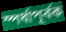
স্পর্ধাপূর্বক